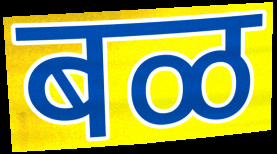
बळ